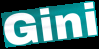
Gini